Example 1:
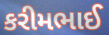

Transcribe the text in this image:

કરીમભાઈ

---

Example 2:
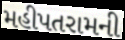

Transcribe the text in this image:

મહીપતરામની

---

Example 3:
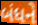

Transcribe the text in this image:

બંધને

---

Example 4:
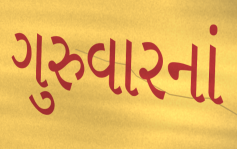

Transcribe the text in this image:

ગુરુવારનાં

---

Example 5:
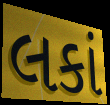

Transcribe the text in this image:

લકાં